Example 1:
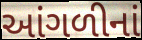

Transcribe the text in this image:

આંગળીનાં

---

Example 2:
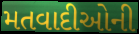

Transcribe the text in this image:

મતવાદીઓની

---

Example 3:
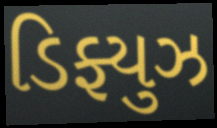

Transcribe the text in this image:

ડિફ્યુઝ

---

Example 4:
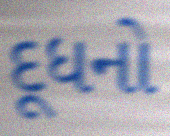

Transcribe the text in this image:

દૂધનો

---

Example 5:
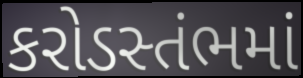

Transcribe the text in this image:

કરોડસ્તંભમાં